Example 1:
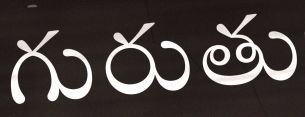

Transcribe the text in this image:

గురుతు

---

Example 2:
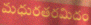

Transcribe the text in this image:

మధురతరమిదం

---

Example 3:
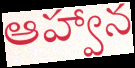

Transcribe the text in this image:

ఆహ్వాన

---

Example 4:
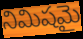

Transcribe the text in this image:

నిమిషమై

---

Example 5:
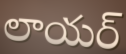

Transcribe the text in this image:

లాయర్